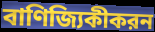
বাণিজ্যিকীকরন